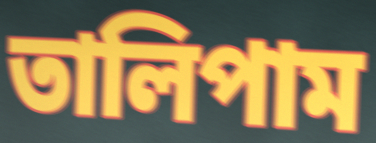
তালিপাম